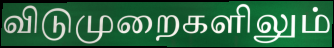
விடுமுறைகளிலும்